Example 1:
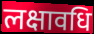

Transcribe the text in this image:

लक्षावधि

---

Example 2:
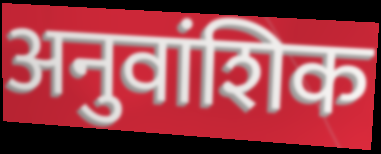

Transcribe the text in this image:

अनुवांशिक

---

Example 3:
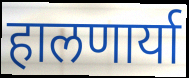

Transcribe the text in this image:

हालणार्या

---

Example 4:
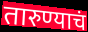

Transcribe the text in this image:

तारुण्याचं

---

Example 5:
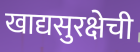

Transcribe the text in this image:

खाद्यसुरक्षेची